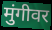
मुंगीवर